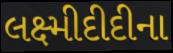
લક્ષ્મીદીદીના